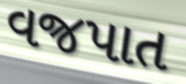
વજ્રપાત